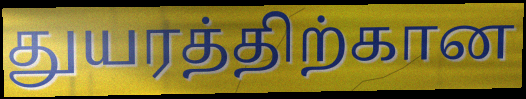
துயரத்திற்கான